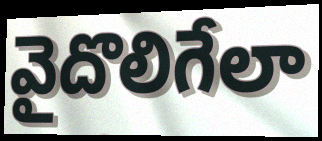
వైదొలిగేలా